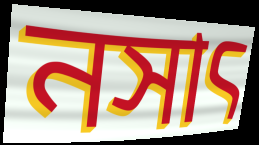
নসাৎ